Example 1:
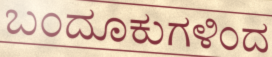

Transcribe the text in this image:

ಬಂದೂಕುಗಳಿಂದ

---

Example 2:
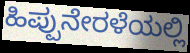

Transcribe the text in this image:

ಹಿಪ್ಪುನೇರಳೆಯಲ್ಲಿ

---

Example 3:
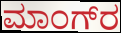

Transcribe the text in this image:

ಮಾಂಗ್‌ರ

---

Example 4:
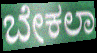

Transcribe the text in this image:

ಬೇಕಲಾ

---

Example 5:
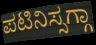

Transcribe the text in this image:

ಪಟಿನಿಸ್ಸಗ್ಗಾ